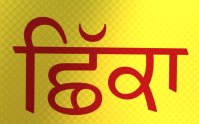
ਛਿੱਕਾ